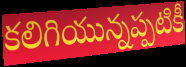
కలిగియున్నప్పటికీ